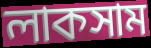
লাকসাম